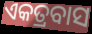
ଏକତ୍ରବାସ